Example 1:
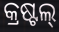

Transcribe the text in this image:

କ୍ରଷ୍ଟଲ୍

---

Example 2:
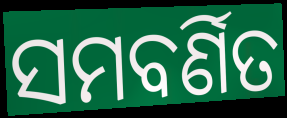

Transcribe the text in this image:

ସମବର୍ଣିତ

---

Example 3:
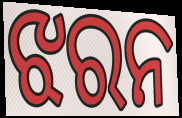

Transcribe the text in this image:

ଝରନ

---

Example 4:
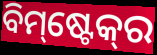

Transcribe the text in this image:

ବିମ୍‌ଷ୍ଟେକ୍‌ର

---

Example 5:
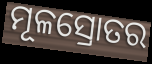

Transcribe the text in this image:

ମୂଳସ୍ରୋତର